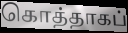
கொத்தாகப்